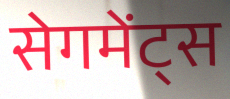
सेगमेंट्स